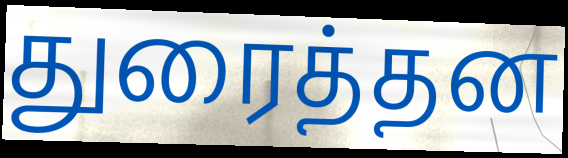
துரைத்தன